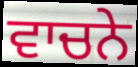
ਵਾਚਨੇ